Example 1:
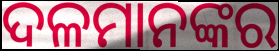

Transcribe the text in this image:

ଦଳମାନଙ୍କର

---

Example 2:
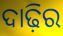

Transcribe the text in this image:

ଦାଢ଼ିର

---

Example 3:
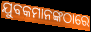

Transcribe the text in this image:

ଯୁବକମାନଙ୍କଠାରେ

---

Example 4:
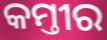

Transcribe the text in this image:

କମ୍ତୀର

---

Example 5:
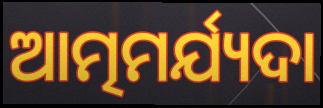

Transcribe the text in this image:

ଆତ୍ମମର୍ଯ୍ୟଦା